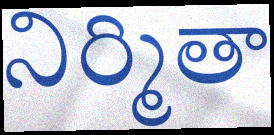
నిర్మితా